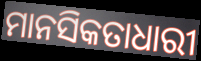
ମାନସିକତାଧାରୀ